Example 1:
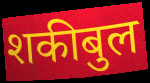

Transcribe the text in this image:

शकीबुल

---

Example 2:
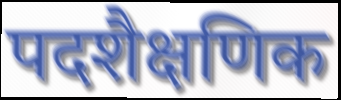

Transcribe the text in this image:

पदशैक्षणिक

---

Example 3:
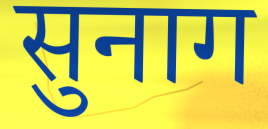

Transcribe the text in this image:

सुनाग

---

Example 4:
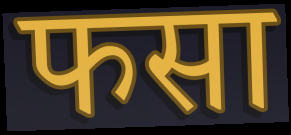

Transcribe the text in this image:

फसा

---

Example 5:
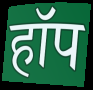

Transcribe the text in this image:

हॉप